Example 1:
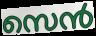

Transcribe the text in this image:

സെൻ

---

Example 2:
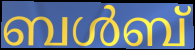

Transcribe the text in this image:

ബൾബ്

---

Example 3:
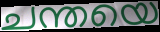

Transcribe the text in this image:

ചന്തയെ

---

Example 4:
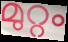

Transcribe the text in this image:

മുറ്റം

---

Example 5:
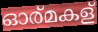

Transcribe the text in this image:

ഓര്മകള്